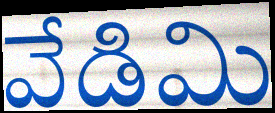
వేడిమి